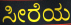
ಸೀರೆಯ